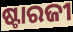
ଷ୍ଟାରଜୀ